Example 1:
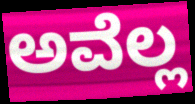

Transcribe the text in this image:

ಅವೆಲ್ಲ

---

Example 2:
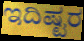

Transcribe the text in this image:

ಇದಿಷ್ಟರ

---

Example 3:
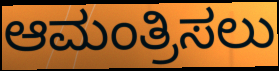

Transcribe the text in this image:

ಆಮಂತ್ರಿಸಲು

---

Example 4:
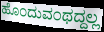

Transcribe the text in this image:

ಹೊಂದುವಂಥದ್ದಲ್ಲ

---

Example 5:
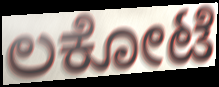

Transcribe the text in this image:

ಲಕೋಟೆ